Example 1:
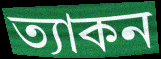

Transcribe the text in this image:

ত্যাকন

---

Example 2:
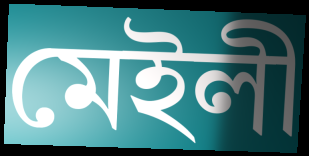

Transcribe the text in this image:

মেইলী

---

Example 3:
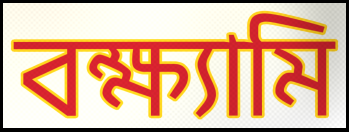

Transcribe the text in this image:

বক্ষ্যামি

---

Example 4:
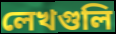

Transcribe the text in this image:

লেখগুলি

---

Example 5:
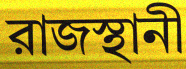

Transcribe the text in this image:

রাজস্থানী